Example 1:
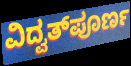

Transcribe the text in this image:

ವಿದ್ವತ್‌ಪೂರ್ಣ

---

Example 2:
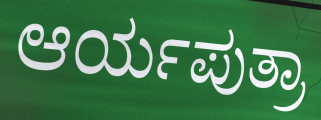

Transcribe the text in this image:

ಆರ್ಯಪುತ್ರಾ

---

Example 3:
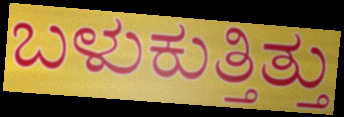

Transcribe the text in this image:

ಬಳುಕುತ್ತಿತ್ತು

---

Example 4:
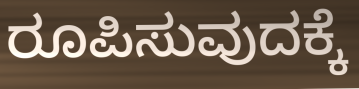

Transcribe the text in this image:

ರೂಪಿಸುವುದಕ್ಕೆ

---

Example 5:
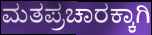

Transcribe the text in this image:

ಮತಪ್ರಚಾರಕ್ಕಾಗಿ